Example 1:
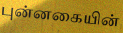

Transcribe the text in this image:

புன்னகையின்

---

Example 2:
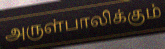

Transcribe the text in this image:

அருள்பாலிக்கும்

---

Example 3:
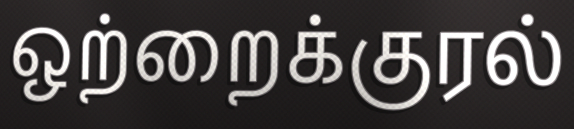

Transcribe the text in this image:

ஒற்றைக்குரல்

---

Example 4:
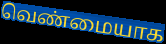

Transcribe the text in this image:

வெண்மையாக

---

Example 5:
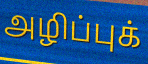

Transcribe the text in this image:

அழிப்புக்